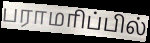
பராமரிப்பில்